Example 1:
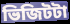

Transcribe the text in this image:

ভিজিটটা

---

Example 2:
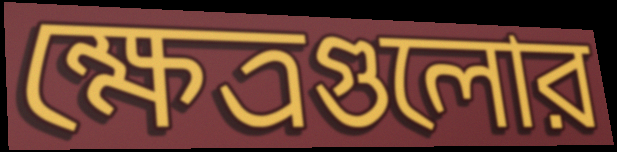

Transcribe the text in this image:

ক্ষেত্রগুলোর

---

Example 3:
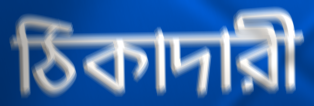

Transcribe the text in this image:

ঠিকাদারী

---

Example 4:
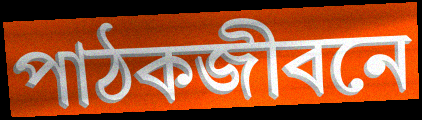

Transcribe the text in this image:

পাঠকজীবনে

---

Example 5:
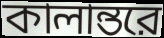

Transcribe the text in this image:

কালান্তরে